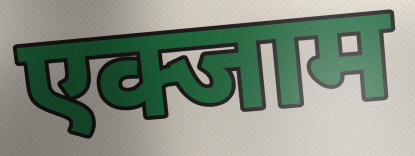
एक्जाम